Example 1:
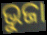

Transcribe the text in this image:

ଭୁଜା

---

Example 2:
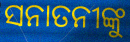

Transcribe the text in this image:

ସନାତନୀଙ୍କୁ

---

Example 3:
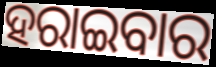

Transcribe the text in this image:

ହରାଇବାର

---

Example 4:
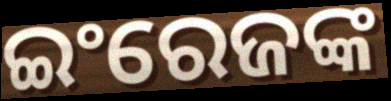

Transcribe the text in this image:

ଇଂରେଜଙ୍କ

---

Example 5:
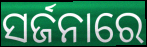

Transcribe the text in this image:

ସର୍ଜନାରେ